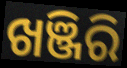
ଖଞ୍ଜିରି